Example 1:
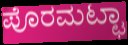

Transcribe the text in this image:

ಪೊರಮಟ್ಟಾ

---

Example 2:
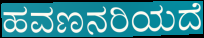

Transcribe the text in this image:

ಹವಣನರಿಯದೆ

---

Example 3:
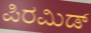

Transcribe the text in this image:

ಪಿರಮಿಡ್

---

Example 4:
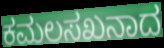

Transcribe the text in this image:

ಕಮಲಸಖನಾದ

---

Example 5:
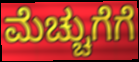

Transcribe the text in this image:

ಮೆಚ್ಚುಗೆಗೆ